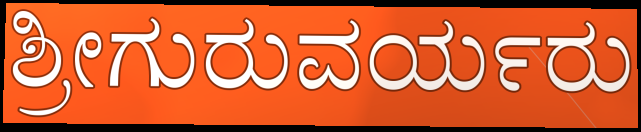
ಶ್ರೀಗುರುವರ್ಯರು